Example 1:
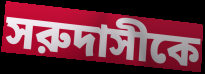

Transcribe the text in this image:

সরুদাসীকে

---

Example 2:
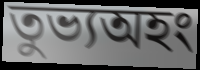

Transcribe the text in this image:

তুভ্যঅহং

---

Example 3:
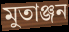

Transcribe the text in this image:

মুতাঞ্জন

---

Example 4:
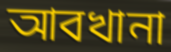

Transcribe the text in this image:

আবখানা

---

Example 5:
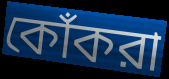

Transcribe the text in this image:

কোঁকরা